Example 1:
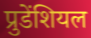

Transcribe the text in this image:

प्रुडेंशियल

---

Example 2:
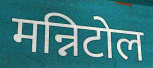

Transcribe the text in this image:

मन्निटोल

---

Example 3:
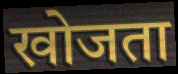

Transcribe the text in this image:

खोजता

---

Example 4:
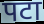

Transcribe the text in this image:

पटा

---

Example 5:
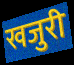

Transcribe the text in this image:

खजुरी